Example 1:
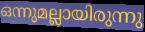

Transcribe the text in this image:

ഒന്നുമല്ലായിരുന്നു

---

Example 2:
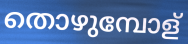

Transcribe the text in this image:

തൊഴുമ്പോള്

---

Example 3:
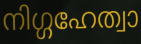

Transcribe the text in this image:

നിഗ്ഗഹേത്വാ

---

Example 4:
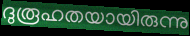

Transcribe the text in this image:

ദുരൂഹതയായിരുന്നു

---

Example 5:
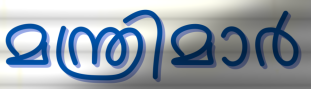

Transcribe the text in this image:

മന്ത്രിമാർ